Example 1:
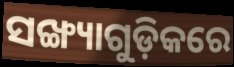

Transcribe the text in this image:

ସଙ୍ଖ୍ୟାଗୁଡ଼ିକରେ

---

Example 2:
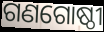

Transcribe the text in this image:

ଗଣଗୋଷ୍ଠୀ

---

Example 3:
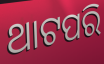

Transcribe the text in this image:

ଥାଟପରି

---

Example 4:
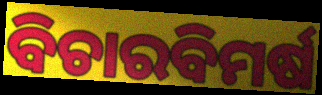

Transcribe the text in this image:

ବିଚାରବିମର୍ଷ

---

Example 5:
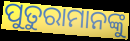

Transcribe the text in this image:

ପୁତୁରାମାନଙ୍କୁ